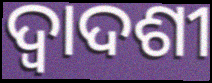
ଦ୍ବାଦଶୀ